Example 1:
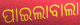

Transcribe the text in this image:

ପାଇଲାବାଲା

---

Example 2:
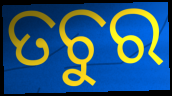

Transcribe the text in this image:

ତଚୁର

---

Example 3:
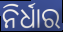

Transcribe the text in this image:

ନିର୍ଧାର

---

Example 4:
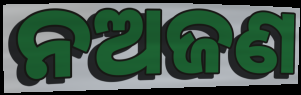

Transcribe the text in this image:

ନଅଜଣ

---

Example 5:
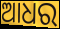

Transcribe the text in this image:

ଆଧର